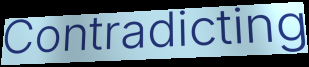
Contradicting